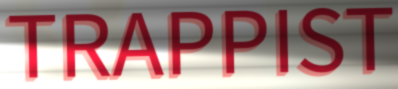
TRAPPIST